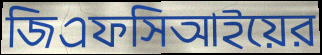
জিএফসিআইয়ের